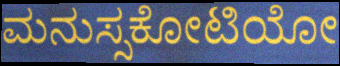
ಮನುಸ್ಸಕೋಟಿಯೋ